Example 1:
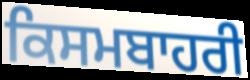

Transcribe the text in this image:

ਕਿਸਮਬਾਹਰੀ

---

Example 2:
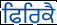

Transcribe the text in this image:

ਫਿਰਿਕੈ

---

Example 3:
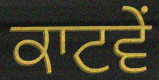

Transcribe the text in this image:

ਕਾਟਵੇਂ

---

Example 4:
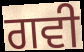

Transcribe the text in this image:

ਗਵੀ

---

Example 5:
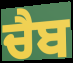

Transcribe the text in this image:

ਚੈਬ